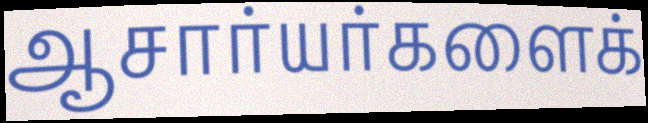
ஆசார்யர்களைக்